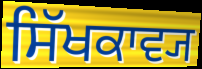
ਸਿੱਖਕਾਵ੍ਯ